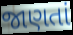
જાણતાં